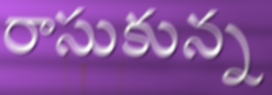
రాసుకున్న